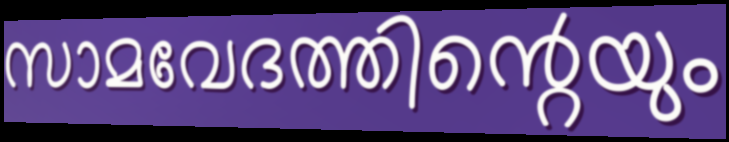
സാമവേദത്തിന്റെയും